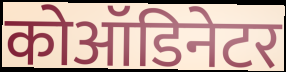
कोऑडिनेटर